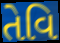
તેવિ